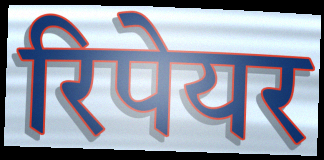
रिपेयर